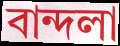
বান্দলা